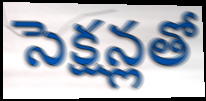
సెక్షన్లతో